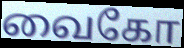
வைகோ